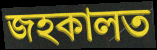
জহকালত